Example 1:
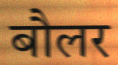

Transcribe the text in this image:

बौलर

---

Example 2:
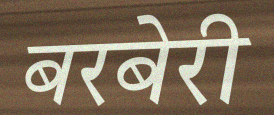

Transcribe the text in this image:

बरबेरी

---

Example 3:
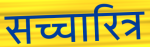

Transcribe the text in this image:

सच्चारित्र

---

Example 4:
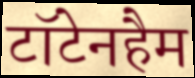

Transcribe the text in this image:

टॉटेनहैम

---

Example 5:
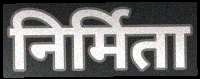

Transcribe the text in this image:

निर्मिता